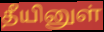
தீயினுள்